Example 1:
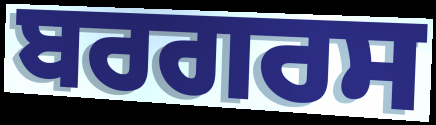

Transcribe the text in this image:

ਬਰਗਰਸ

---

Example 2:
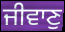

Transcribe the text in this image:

ਜੀਵਾਣੁ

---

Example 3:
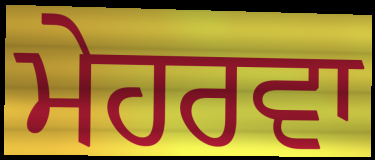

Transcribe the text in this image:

ਮੇਹਰਵਾ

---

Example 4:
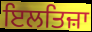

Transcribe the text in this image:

ਇਲਤਿਜ਼ਾ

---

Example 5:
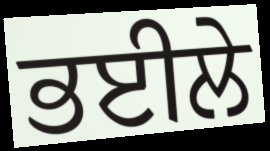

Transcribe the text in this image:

ਭਈਲੇ